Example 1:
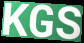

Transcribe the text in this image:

KGS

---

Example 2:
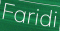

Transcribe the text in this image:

Faridi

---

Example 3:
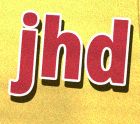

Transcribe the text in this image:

jhd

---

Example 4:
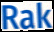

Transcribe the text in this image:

Rak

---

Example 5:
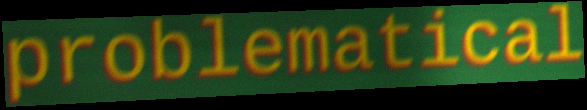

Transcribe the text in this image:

problematical